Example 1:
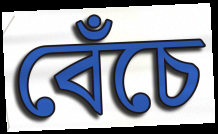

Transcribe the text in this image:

বেঁচে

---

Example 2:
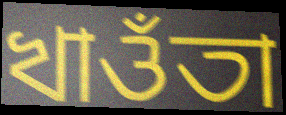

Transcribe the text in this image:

খাওঁতা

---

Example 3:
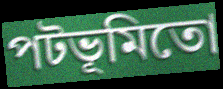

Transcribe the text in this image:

পটভূমিতো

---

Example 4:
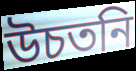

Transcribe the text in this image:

উচতনি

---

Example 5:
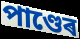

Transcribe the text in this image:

পাণ্ডেৰ